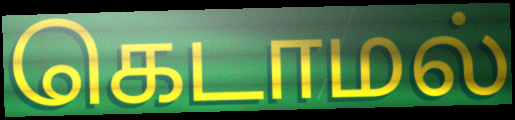
கெடாமல்